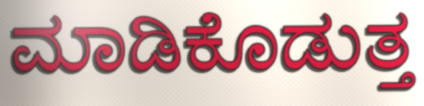
ಮಾಡಿಕೊಡುತ್ತ